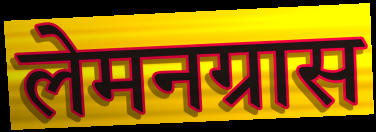
लेमनग्रास